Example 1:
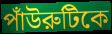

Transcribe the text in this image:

পাঁউরুটিকে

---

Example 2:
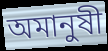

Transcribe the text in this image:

অমানুষী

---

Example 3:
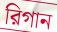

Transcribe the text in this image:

রিগান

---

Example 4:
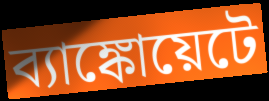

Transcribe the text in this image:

ব্যাঙ্কোয়েটে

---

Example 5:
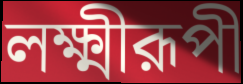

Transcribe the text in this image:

লক্ষ্মীরূপী